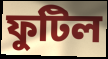
ফুটিল